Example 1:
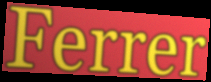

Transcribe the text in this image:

Ferrer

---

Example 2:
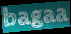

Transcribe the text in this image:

bagaa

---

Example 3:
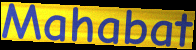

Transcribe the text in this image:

Mahabat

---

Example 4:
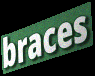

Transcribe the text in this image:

braces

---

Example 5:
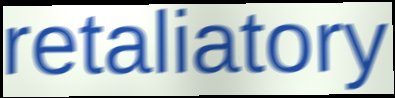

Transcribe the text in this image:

retaliatory